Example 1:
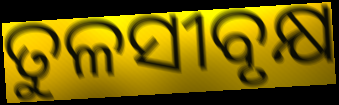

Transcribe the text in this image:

ତୁଳସୀବୃକ୍ଷ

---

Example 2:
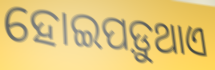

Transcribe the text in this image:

ହୋଇପଡ଼ୁଥାଏ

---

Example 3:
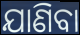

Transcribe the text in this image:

ଯାଣିବା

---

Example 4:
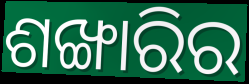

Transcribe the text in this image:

ଶଙ୍ଖାରିର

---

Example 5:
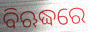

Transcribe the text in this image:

ବିଋଦ୍ଧରେ